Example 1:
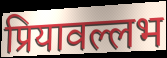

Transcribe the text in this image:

प्रियावल्लभ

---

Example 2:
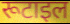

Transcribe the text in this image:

रूटाइल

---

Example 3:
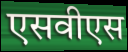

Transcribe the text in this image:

एसवीएस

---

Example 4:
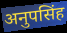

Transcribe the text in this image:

अनुपसिंह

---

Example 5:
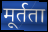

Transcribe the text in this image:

मूर्तता